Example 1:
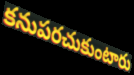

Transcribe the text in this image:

కనుపరచుకుంటారు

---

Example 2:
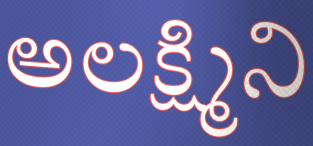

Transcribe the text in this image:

అలక్ష్మిని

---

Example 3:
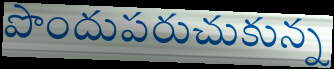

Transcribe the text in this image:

పొందుపరుచుకున్న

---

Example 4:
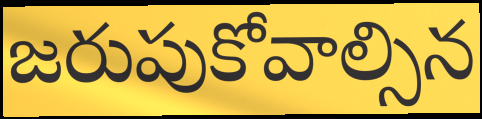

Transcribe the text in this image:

జరుపుకోవాల్సిన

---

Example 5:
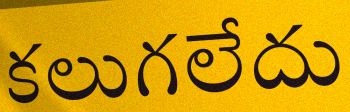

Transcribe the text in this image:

కలుగలేదు